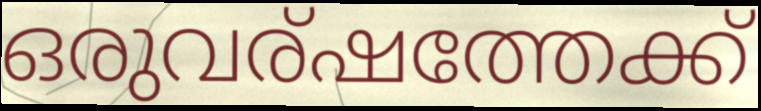
ഒരുവര്ഷത്തേക്ക്